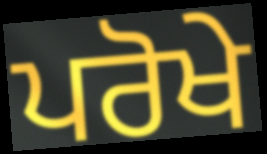
ਪਰੋਖੇ